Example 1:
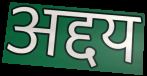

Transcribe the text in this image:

अद्दय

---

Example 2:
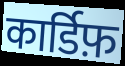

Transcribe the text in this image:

कार्डिफ़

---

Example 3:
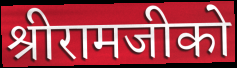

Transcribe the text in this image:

श्रीरामजीको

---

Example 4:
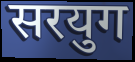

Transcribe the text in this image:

सरयुग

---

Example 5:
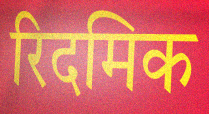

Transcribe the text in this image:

रिदमिक